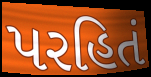
પરહિતં